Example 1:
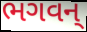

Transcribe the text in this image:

ભગવન્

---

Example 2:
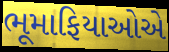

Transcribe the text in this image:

ભૂમાફિયાઓએ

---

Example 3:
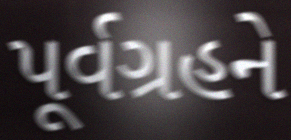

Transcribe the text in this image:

પૂર્વગ્રહને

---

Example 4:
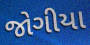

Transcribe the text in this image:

જોગીયા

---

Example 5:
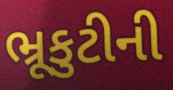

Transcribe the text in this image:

ભ્રૂકુટીની